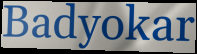
Badyokar